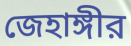
জেহাঙ্গীর